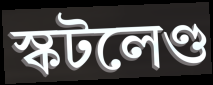
স্কটলেণ্ড